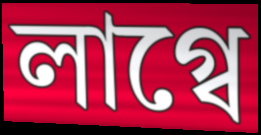
লাগ্বে